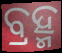
ବ୍ରହ୍ମ